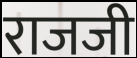
राजजी